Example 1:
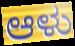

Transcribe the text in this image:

ಆಳು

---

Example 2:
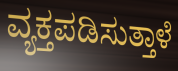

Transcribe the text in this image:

ವ್ಯಕ್ತಪಡಿಸುತ್ತಾಳೆ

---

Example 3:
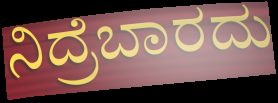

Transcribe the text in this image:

ನಿದ್ರೆಬಾರದು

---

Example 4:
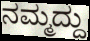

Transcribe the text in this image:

ನಮ್ಮದ್ದು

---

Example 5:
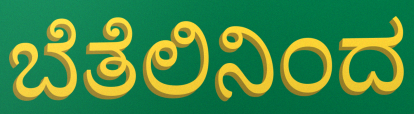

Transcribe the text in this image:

ಬೆತೆಲಿನಿಂದ